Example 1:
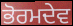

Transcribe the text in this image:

ਭੋਰਮਦੇਵ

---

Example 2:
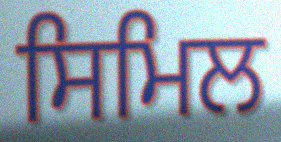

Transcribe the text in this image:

ਸਿਮਿਲ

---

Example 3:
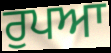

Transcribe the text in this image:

ਰੁਪਆ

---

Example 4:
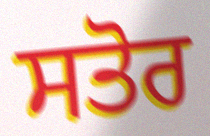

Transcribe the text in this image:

ਸਤੋਰ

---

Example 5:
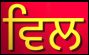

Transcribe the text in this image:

ਵਿਲ